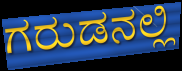
ಗರುಡನಲ್ಲಿ